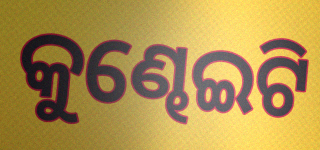
କୁଣ୍ଢେଇଟି